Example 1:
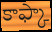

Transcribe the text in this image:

కాఫ్కా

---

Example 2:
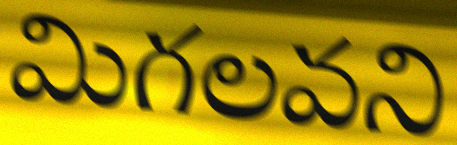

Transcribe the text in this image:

మిగలవని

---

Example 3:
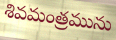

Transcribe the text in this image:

శివమంత్రమును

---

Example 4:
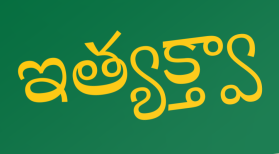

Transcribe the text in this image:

ఇత్యక్త్వా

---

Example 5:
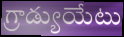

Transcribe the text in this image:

గ్రాడ్యుయేటు